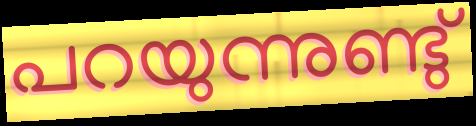
പറയുന്നുണ്ടു്